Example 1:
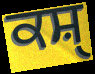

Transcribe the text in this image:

ਕਸ਼ੑ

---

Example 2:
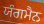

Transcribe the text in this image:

ਯੰਗਮੈਨ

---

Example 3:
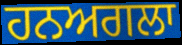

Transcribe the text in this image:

ਹਨਅਗਲਾ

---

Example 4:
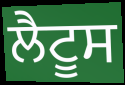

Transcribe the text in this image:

ਲੈਟੂਸ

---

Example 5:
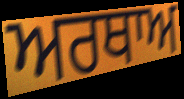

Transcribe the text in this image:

ਅਰਥਾਅ